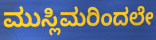
ಮುಸ್ಲಿಮರಿಂದಲೇ